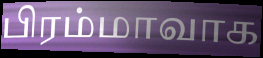
பிரம்மாவாக